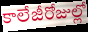
కాలేజీరోజుల్లో